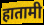
हातामी